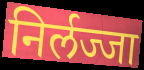
निर्लज्जा